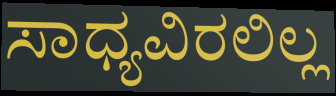
ಸಾಧ್ಯವಿರಲಿಲ್ಲ